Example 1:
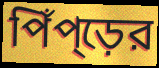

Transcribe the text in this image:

পিঁপ্‌ড়ের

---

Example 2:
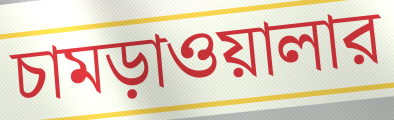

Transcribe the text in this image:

চামড়াওয়ালার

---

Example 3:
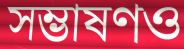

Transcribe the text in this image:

সম্ভাষণও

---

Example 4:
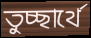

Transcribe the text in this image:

তুচ্ছার্থে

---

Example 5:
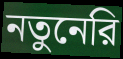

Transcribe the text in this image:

নতুনেরি